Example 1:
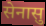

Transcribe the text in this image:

सेनासु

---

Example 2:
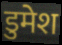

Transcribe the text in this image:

डुमेश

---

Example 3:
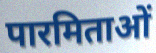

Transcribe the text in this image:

पारमिताओं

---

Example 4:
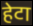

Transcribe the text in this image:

हेटा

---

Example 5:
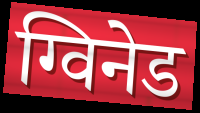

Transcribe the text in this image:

ग्विनेड